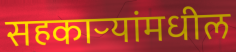
सहकाऱ्यांमधील